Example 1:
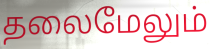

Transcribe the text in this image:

தலைமேலும்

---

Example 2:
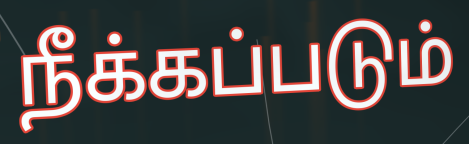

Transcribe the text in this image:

நீக்கப்படும்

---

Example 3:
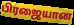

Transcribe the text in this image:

பிரஜையான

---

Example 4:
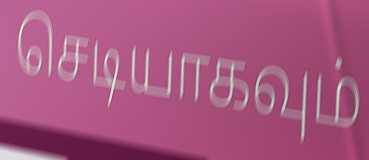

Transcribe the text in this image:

செடியாகவும்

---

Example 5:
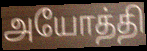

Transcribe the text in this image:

அயோத்தி